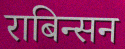
राबिन्सन